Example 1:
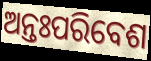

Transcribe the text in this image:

ଅନ୍ତଃପରିବେଶ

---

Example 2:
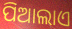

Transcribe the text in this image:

ପିଆଲାଏ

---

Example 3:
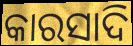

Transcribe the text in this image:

କାରସାଦି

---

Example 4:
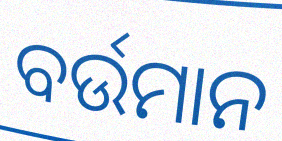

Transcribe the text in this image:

ବର୍ଉମାନ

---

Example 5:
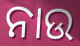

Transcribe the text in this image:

ନାଉ